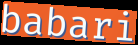
babari